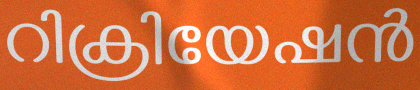
റിക്രിയേഷൻ